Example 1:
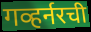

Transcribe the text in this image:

गव्हर्नरची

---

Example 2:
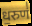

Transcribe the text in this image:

ध॒रुणं॑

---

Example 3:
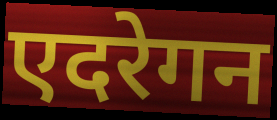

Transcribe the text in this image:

एदरेगन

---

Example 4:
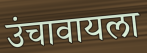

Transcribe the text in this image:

उंचावायला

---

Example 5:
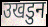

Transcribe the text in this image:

उखडुन